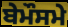
ਬੇਮੌਸਮੇ